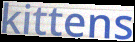
kittens